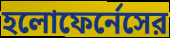
হলোফের্নেসের